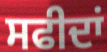
ਸਫੀਦਾਂ